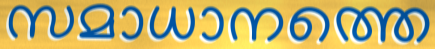
സമാധാനത്തെ